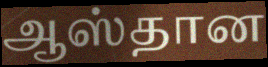
ஆஸ்தான